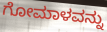
ಗೋಮಾಳವನ್ನು